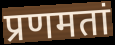
प्रणमतां